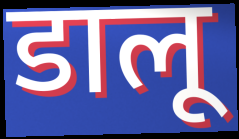
डालू